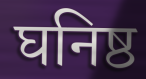
घनिष्ठ